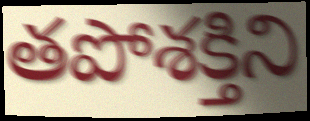
తపోశక్తిని